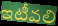
ఇటీవలి